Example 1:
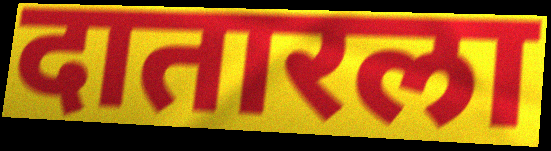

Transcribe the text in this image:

दातारला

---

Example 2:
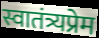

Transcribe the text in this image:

स्वातंत्र्यप्रेम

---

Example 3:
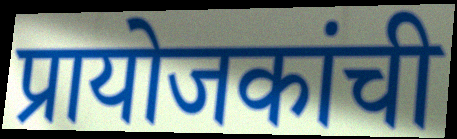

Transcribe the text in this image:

प्रायोजकांची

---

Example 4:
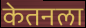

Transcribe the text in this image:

केतनला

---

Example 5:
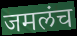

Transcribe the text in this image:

जमलंच